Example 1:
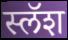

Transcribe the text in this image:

स्लॅश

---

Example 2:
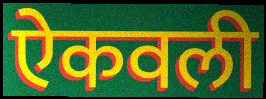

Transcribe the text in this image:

ऐकवली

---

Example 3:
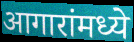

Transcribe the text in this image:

आगारांमध्ये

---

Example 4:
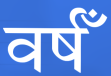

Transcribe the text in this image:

वर्षँ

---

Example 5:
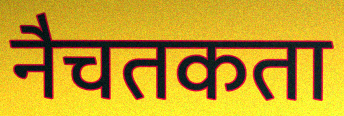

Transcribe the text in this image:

नैचतकता